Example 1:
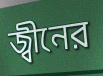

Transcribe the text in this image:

জ্বীনের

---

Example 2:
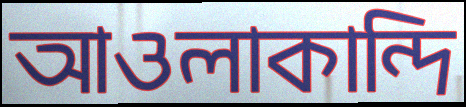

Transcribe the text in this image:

আওলাকান্দি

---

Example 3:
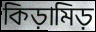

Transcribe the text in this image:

কিড়ামিড়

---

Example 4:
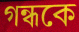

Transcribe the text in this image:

গন্ধকে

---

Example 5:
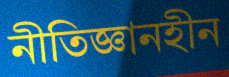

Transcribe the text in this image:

নীতিজ্ঞানহীন